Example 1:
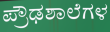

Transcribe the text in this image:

ಪ್ರೌಢಶಾಲೆಗಳ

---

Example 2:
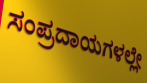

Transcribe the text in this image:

ಸಂಪ್ರದಾಯಗಳಲ್ಲೇ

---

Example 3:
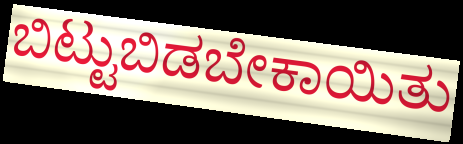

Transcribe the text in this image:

ಬಿಟ್ಟುಬಿಡಬೇಕಾಯಿತು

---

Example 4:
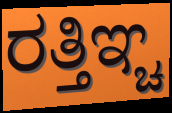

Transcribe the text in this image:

ರತ್ತಿಞ್ಚ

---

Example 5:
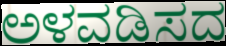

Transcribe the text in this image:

ಅಳವಡಿಸದ